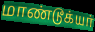
மாண்டூக்யர்